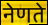
नेणते